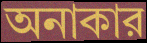
অনাকার